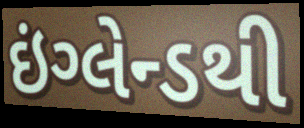
ઇંગ્લેન્ડથી